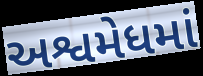
અશ્વમેધમાં